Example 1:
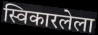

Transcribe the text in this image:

स्विकारलेला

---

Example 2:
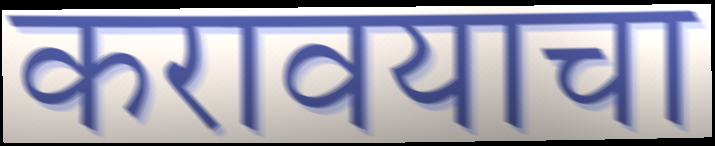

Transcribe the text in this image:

करावयाचा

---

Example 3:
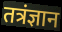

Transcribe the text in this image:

तत्रंज्ञान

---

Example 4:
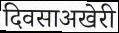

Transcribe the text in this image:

दिवसाअखेरी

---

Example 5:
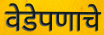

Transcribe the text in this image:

वेडेपणाचे